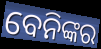
ବେନିଙ୍କର